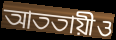
আততায়ীও